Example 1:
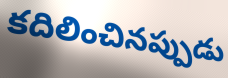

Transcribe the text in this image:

కదిలించినప్పుడు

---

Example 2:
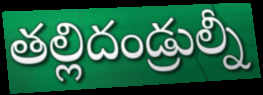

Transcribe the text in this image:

తల్లిదండ్రుల్నీ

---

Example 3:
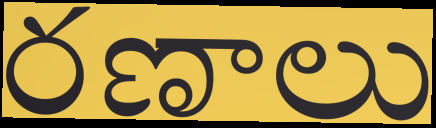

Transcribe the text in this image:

రణాలు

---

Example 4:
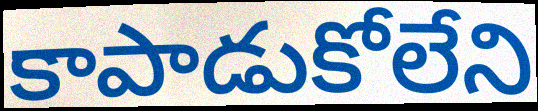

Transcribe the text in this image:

కాపాడుకోలేని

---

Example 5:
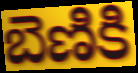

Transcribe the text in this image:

బెణికి